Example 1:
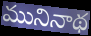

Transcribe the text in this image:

మునినాథ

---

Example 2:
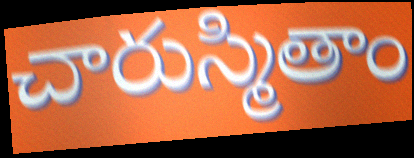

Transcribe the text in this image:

చారుస్మితాం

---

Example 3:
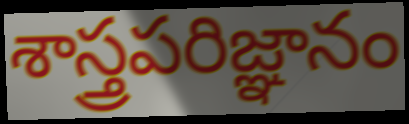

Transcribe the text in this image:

శాస్త్రపరిజ్ఞానం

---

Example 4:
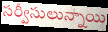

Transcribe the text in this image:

సర్వీసులున్నాయి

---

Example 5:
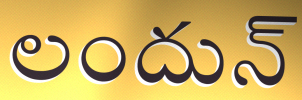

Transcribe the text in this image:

లందున్